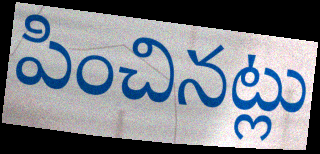
పించినట్లు